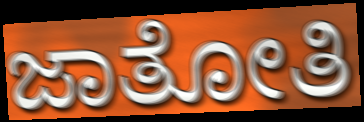
ಜಾತೋತಿ